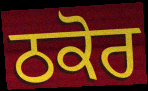
ਠਕੋਰ